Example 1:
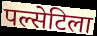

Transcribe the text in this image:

पल्सेटिला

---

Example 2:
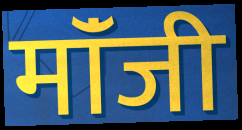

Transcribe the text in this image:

मॉंजी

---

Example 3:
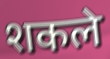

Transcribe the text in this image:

शकले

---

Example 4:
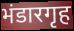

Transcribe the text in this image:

भंडारगृह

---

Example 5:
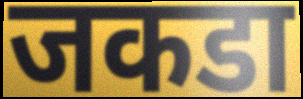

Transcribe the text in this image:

जकडा